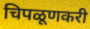
चिपळूणकरी